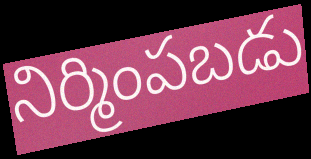
నిర్మింపబడు